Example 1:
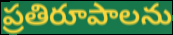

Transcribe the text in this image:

ప్రతిరూపాలను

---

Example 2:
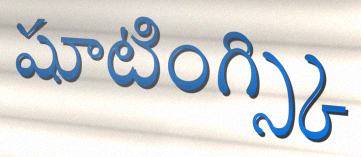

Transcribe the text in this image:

షూటింగ్స్కి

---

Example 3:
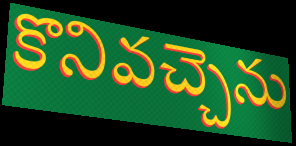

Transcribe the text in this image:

కొనివచ్చెను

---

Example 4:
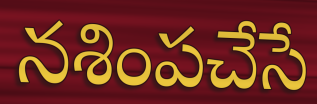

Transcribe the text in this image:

నశింపచేసే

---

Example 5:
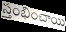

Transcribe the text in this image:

స్తంభించాయి